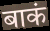
बाकं